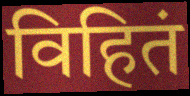
विहितं